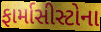
ફાર્માસીસ્ટોના